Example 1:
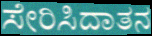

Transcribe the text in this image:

ಸೇರಿಸಿದಾತನ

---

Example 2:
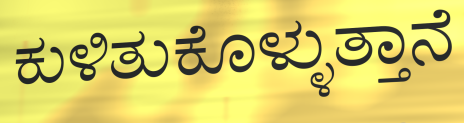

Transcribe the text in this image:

ಕುಳಿತುಕೊಳ್ಳುತ್ತಾನೆ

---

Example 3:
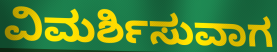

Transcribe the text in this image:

ವಿಮರ್ಶಿಸುವಾಗ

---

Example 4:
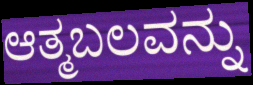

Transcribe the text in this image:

ಆತ್ಮಬಲವನ್ನು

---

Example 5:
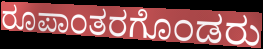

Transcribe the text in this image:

ರೂಪಾಂತರಗೊಂಡರು